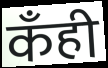
कँही